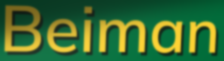
Beiman